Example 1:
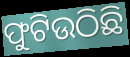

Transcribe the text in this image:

ଫୁଟିଉଠିଛି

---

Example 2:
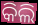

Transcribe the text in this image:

କିଲି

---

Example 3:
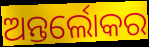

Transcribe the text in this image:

ଅନ୍ତର୍ଲୋକର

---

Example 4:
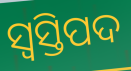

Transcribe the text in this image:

ସ୍ବସ୍ତିପଦ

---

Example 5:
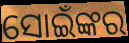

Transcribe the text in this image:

ସୋଇଁଙ୍କର